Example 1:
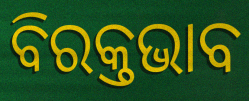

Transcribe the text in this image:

ବିରକ୍ତଭାବ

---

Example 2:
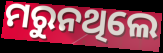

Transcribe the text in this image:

ମରୁନଥିଲେ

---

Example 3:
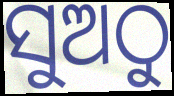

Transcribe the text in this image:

ସୁଅଠୁ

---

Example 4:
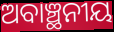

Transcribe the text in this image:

ଅବାଞ୍ଛନୀୟ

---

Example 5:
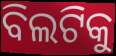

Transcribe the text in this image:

ବିଲଟିକୁ